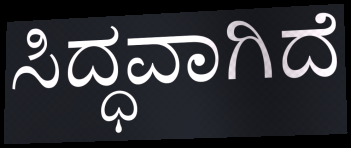
ಸಿದ್ಧವಾಗಿದೆ